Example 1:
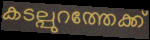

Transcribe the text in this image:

കടല്പുറത്തേക്ക്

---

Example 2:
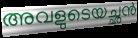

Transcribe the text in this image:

അവളുടെയച്ഛൻ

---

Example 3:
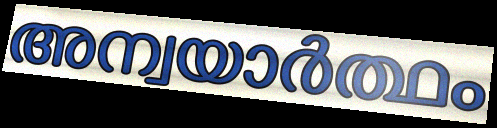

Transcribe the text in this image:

അന്വയാർത്ഥം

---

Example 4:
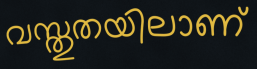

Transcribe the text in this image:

വസ്തുതയിലാണ്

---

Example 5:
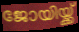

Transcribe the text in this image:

ജോയിയ്ക്ക്